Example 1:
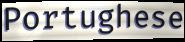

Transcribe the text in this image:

Portughese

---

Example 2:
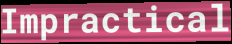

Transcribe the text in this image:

Impractical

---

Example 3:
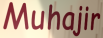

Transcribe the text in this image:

Muhajir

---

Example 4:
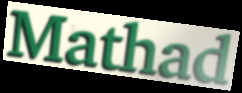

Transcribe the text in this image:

Mathad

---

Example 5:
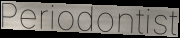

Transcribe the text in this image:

Periodontist